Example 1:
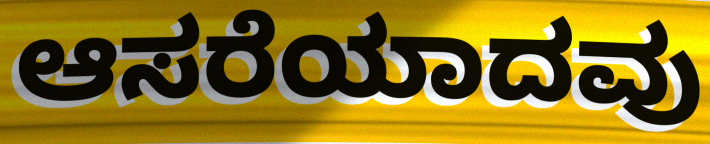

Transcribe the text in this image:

ಆಸರೆಯಾದವು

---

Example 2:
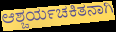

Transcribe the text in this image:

ಆಶ್ಚರ್ಯಚಕಿತನಾಗಿ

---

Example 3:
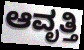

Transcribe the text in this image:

ಆವೃತ್ತಿ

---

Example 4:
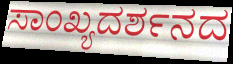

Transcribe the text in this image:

ಸಾಂಖ್ಯದರ್ಶನದ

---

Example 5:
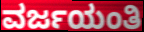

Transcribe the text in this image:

ವರ್ಜಯಂತಿ